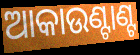
ଆକାଉଣ୍ଟାଣ୍ଟ